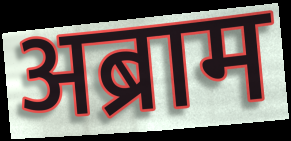
अब्राम